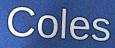
Coles